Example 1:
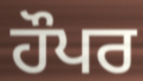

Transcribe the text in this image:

ਹੌਪਰ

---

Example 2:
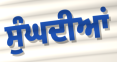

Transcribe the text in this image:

ਸੁੰਘਦੀਆਂ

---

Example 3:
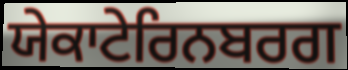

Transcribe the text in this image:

ਯੇਕਾਟੇਰਿਨਬਰਗ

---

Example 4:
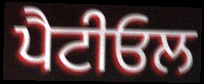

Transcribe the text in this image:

ਪੈਟੀਓਲ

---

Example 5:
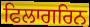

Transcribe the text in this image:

ਫਿਲਾਗਰਿਨ